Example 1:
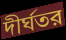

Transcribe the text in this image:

দীর্ঘতর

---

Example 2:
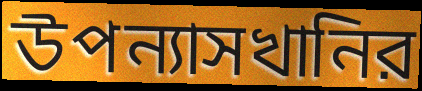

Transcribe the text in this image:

উপন্যাসখানির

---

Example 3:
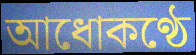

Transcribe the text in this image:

আধোকণ্ঠে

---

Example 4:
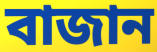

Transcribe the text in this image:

বাজান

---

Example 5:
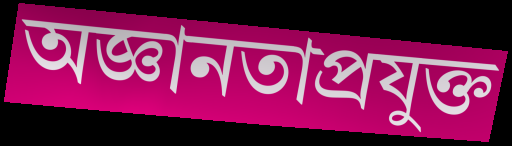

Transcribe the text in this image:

অজ্ঞানতাপ্রযুক্ত